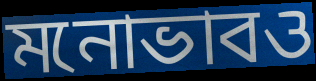
মনোভাবও